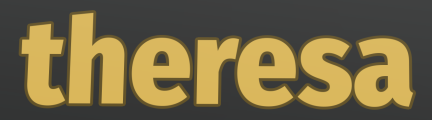
theresa